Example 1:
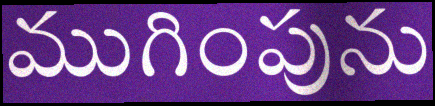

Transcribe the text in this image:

ముగింపును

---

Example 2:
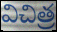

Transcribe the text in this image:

విచిత్ర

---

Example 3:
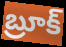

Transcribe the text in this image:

బ్రూక్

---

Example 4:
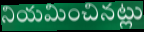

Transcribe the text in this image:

నియమించినట్లు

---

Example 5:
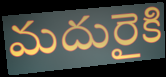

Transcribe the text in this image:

మదురైకి